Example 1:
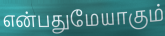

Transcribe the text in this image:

என்பதுமேயாகும்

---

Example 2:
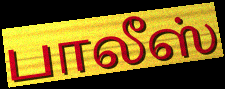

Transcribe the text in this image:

பாலீஸ்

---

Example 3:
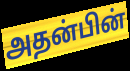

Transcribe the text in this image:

அதன்பின்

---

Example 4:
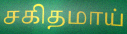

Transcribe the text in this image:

சகிதமாய்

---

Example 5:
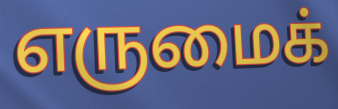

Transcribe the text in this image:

எருமைக்